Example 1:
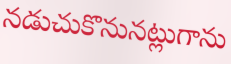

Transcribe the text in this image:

నడుచుకొనునట్లుగాను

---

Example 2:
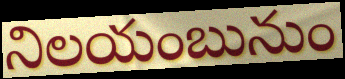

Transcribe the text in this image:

నిలయంబునుం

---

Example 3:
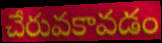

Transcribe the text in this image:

చేరువకావడం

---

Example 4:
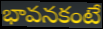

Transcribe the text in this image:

భావనకంటే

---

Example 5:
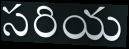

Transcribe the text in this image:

సరియ